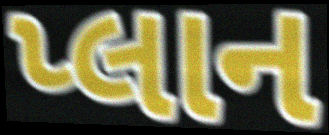
પ્લાન